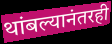
थांबल्यानंतरही